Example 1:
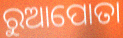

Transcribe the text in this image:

ରୁଆପୋତା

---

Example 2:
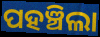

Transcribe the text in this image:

ପହଞ୍ଚିଲା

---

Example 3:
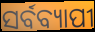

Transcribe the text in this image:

ସର୍ବବ୍ୟାପୀ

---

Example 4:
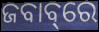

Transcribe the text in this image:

ଜବାବ୍‌ରେ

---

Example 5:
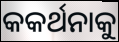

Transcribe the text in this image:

କକର୍ଥନାକୁ